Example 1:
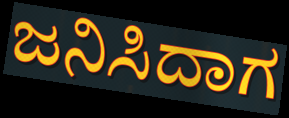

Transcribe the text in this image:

ಜನಿಸಿದಾಗ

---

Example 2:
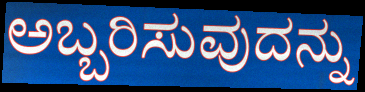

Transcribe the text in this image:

ಅಬ್ಬರಿಸುವುದನ್ನು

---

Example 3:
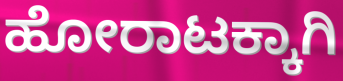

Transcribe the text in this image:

ಹೋರಾಟಕ್ಕಾಗಿ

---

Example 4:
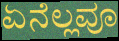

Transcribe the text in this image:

ಏನೆಲ್ಲವೂ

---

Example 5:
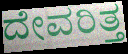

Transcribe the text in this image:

ದೇವರಿತ್ತ